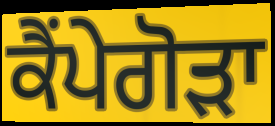
ਕੈਂਪੇਗੋੜਾ